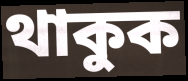
থাকুক